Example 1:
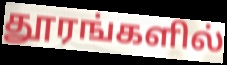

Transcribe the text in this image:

தூரங்களில்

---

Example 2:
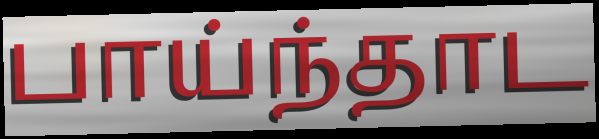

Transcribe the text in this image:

பாய்ந்தாட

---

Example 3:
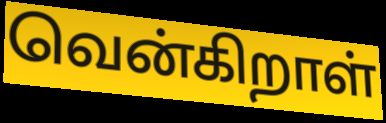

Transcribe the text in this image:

வென்கிறாள்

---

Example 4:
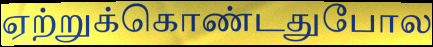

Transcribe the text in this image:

ஏற்றுக்கொண்டதுபோல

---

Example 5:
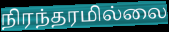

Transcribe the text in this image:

நிரந்தரமில்லை